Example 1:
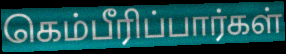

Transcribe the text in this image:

கெம்பீரிப்பார்கள்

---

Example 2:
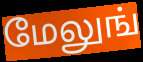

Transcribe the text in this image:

மேலுங்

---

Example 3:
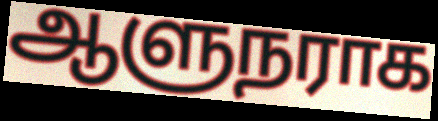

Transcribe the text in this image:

ஆளுநராக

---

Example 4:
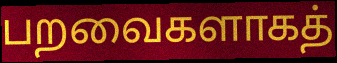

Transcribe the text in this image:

பறவைகளாகத்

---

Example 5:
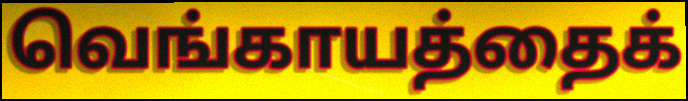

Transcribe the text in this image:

வெங்காயத்தைக்